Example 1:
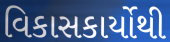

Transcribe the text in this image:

વિકાસકાર્યોથી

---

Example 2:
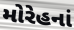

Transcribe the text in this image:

મોરેહનાં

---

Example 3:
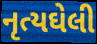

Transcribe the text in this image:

નૃત્યઘેલી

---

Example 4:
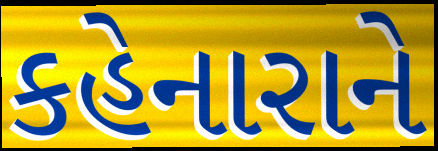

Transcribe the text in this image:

કહેનારાને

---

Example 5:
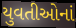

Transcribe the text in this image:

યુવતીઓનાં